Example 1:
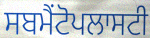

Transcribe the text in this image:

ਸਬਮੈਂਟੋਪਲਾਸਟੀ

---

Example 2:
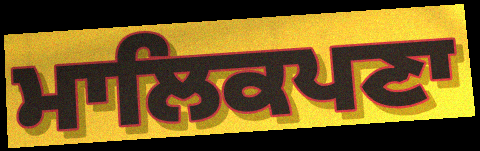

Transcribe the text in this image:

ਮਾਲਿਕਪਣਾ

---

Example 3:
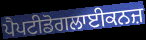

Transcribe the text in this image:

ਪੈਪਟੀਡੋਗਲਾਈਕਨਜ਼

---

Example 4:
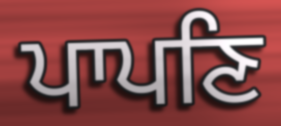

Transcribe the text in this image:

ਪਾਪਣਿ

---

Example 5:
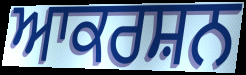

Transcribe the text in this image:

ਆਕਰਸ਼ਨ